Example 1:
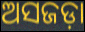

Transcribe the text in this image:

ଅସଜଡ଼ା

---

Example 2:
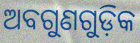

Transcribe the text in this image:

ଅବଗୁଣଗୁଡ଼ିକ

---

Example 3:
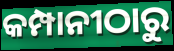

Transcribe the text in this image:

କମ୍ପାନୀଠାରୁ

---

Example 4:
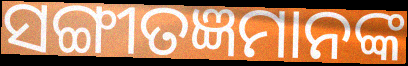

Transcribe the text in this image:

ସଙ୍ଗୀତଜ୍ଞମାନଙ୍କ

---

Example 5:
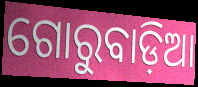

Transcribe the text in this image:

ଗୋରୁବାଡ଼ିଆ